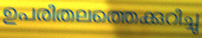
ഉപരിതലത്തെക്കുറിച്ചു